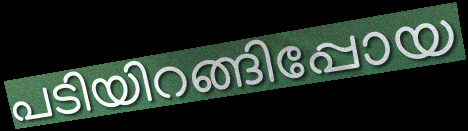
പടിയിറങ്ങിപ്പോയ